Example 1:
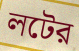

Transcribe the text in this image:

লটের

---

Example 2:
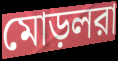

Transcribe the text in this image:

মোড়লরা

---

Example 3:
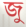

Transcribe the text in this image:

জু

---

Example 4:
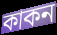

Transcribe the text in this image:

কাকন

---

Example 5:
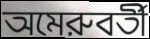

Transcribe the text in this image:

অমেরুবর্তী